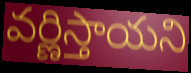
వర్ణిస్తాయని